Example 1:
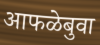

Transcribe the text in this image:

आफळेबुवा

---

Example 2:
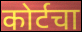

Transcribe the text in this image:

कोर्टचा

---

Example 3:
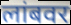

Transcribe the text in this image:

लांबवर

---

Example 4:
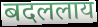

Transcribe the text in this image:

बदललाय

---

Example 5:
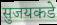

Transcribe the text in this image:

सुजयकडे